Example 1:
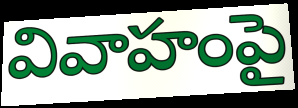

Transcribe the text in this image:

వివాహంపై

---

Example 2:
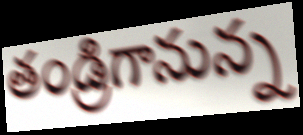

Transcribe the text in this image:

తండ్రిగానున్న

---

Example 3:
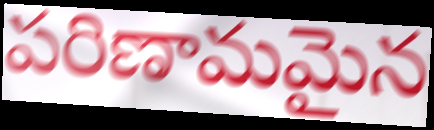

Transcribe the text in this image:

పరిణామమైన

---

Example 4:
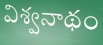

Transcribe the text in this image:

విశ్వనాథం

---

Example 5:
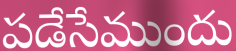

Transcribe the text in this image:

పడేసేముందు